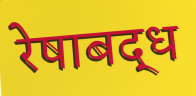
रेषाबद्ध